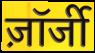
ज़ॉर्जी